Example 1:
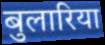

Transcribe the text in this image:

बुलारिया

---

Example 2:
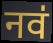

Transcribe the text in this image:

नव॑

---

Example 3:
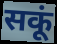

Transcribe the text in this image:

सकूं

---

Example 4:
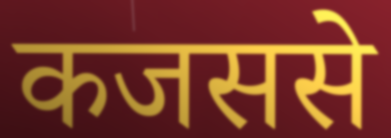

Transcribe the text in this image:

कजससे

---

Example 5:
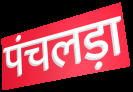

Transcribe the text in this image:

पंचलड़ा